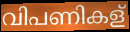
വിപണികള്